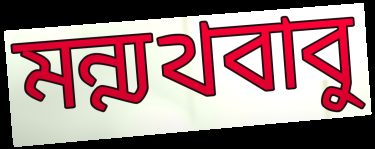
মন্মথবাবু